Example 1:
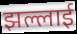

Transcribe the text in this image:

झल्लाई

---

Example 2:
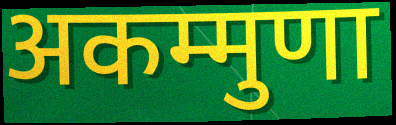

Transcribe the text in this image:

अकम्मुणा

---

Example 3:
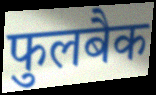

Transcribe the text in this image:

फुलबैक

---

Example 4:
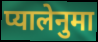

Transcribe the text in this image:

प्यालेनुमा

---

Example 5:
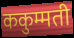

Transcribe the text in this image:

ककुम्मती